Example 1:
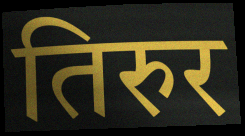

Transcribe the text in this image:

तिरुर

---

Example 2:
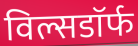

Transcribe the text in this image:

विल्सडॉर्फ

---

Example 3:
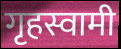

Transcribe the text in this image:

गृहस्वामी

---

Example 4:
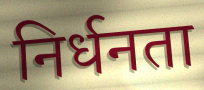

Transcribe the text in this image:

निर्धनता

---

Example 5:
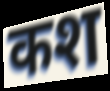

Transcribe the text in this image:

कश